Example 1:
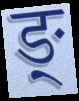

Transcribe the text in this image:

ङ्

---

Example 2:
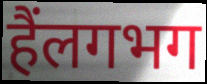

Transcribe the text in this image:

हैंलगभग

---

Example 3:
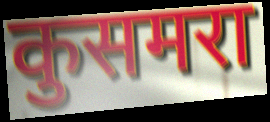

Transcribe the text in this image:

कुसमरा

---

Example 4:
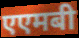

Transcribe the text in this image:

एएमबी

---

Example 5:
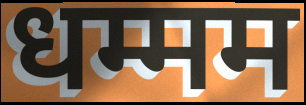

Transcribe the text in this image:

धम्मम